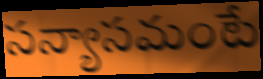
సన్యాసమంటే